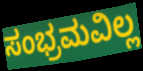
ಸಂಭ್ರಮವಿಲ್ಲ